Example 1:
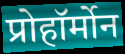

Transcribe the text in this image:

प्रोहॉर्मोन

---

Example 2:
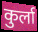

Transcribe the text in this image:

कुर्ला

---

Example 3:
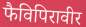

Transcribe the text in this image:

फैविपिरावीर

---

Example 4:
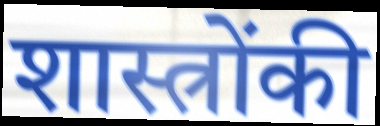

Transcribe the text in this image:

शास्त्रोंकी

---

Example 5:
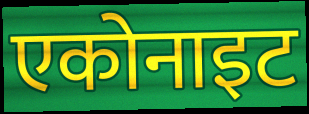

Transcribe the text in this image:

एकोनाइट